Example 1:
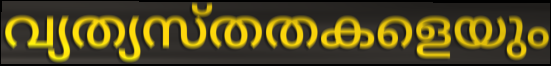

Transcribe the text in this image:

വ്യത്യസ്തതകളെയും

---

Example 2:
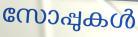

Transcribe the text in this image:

സോപ്പുകൾ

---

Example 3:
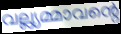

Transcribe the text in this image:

വല്ല്യമ്മാവന്റെ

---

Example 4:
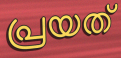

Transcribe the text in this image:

പ്രയത്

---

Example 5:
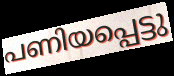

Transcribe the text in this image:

പണിയപ്പെട്ടു